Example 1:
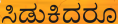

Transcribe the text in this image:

ಸಿಡುಕಿದರೂ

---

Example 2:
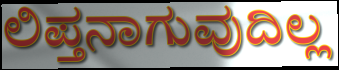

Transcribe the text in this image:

ಲಿಪ್ತನಾಗುವುದಿಲ್ಲ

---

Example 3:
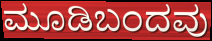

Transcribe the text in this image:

ಮೂಡಿಬಂದವು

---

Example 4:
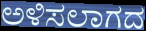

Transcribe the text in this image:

ಅಳಿಸಲಾಗದ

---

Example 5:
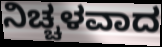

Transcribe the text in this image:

ನಿಚ್ಚಳವಾದ